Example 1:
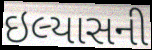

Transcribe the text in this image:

ઇલ્યાસની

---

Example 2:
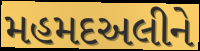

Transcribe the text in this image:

મહમદઅલીને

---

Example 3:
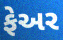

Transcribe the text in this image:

ફેઅર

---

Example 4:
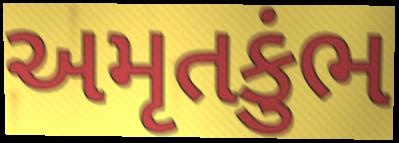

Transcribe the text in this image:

અમૃતકુંભ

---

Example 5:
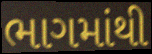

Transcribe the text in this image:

ભાગમાંથી